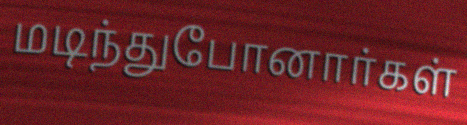
மடிந்துபோனார்கள்